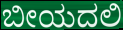
ಬೀಯದಲಿ